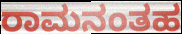
ರಾಮನಂತಹ